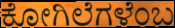
ಕೋಗಿಲೆಗಳೆಂಬ